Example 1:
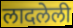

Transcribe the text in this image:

लादलेली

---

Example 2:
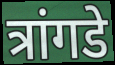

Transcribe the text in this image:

त्रांगडे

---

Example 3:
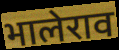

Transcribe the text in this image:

भालेराव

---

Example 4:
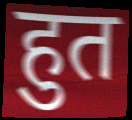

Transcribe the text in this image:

हुत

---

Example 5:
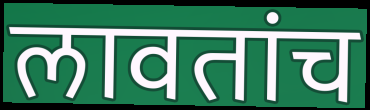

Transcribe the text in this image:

लावतांच